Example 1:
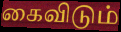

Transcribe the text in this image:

கைவிடும்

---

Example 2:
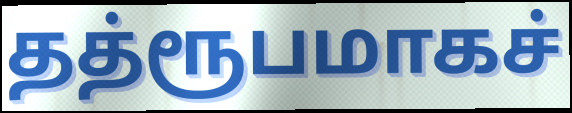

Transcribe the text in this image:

தத்ரூபமாகச்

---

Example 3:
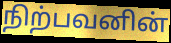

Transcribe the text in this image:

நிற்பவனின்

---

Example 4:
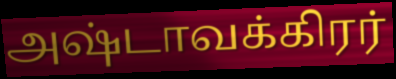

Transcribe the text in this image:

அஷ்டாவக்கிரர்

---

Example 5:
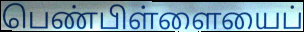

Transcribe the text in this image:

பெண்பிள்ளையைப்